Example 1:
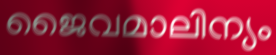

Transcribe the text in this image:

ജൈവമാലിന്യം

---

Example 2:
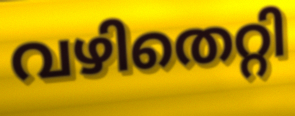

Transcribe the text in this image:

വഴിതെറ്റി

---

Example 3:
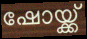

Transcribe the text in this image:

ഷോയ്ക്ക്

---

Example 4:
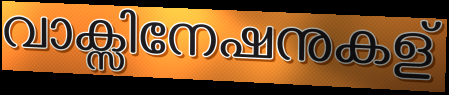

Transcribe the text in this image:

വാക്സിനേഷനുകള്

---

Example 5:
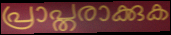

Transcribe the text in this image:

പ്രാപ്തരാക്കുക